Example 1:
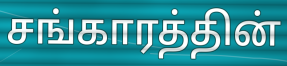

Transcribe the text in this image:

சங்காரத்தின்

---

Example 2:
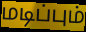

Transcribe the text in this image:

மடிப்பும்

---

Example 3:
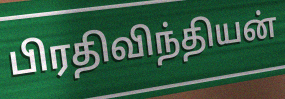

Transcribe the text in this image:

பிரதிவிந்தியன்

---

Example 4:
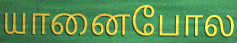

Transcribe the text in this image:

யானைபோல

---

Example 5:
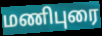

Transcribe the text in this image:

மணிபுரை